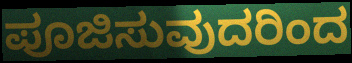
ಪೂಜಿಸುವುದರಿಂದ